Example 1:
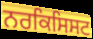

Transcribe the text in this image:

ਨਰਕਿਸਿਸਟ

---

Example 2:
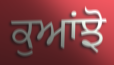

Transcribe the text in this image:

ਕੁਆਂਝੋ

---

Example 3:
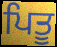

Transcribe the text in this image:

ਪਿਤੂ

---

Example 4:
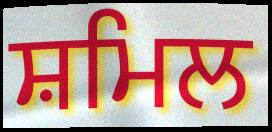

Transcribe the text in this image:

ਸ਼ਮਿਲ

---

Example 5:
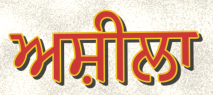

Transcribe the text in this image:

ਅਸ਼ੀਲਾ